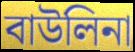
বাউলিনা